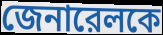
জেনারেলকে